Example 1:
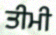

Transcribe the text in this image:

ਤੀਮੀ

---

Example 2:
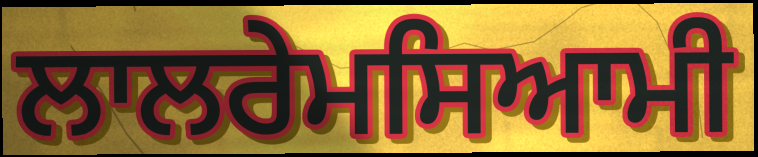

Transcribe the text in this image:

ਲਾਲਰੇਮਸਿਆਮੀ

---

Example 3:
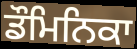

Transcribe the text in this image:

ਡੌਮਿਨਿਕਾ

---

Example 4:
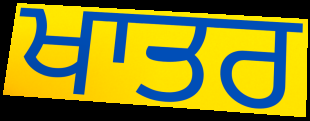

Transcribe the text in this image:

ਖਾਤਰ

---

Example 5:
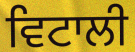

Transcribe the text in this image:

ਵਿਟਾਲੀ